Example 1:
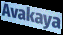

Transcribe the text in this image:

Avakaya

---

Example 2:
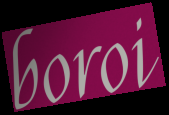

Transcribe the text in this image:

boroi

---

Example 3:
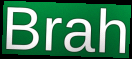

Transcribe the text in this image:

Brah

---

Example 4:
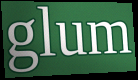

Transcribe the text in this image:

glum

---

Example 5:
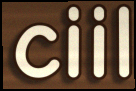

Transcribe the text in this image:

ciil